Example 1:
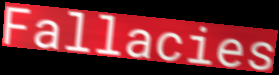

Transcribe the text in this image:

Fallacies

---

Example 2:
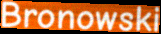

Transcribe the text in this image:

Bronowski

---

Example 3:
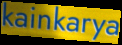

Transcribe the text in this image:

kainkarya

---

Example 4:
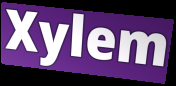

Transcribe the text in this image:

Xylem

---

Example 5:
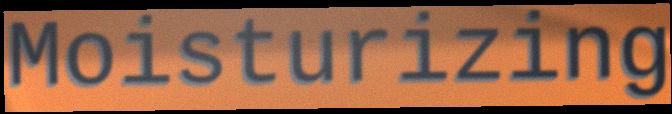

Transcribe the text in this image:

Moisturizing